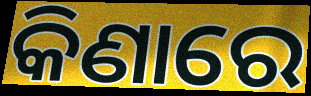
କିଣାରେ